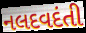
નલદવદંતી